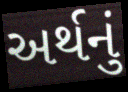
અર્થનું